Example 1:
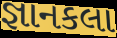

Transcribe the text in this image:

જ્ઞાનકલા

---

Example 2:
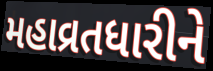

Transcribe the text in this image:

મહાવ્રતધારીને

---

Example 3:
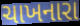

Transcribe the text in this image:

ચાખનારા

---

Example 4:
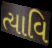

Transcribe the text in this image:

ત્યાવિ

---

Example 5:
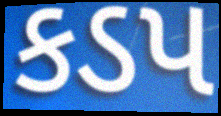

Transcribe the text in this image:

કડપ